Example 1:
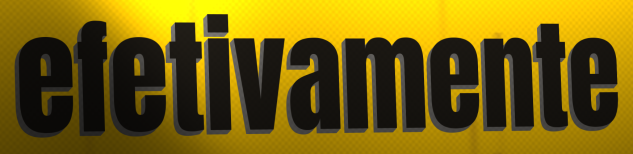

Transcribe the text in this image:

efetivamente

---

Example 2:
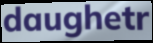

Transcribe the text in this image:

daughetr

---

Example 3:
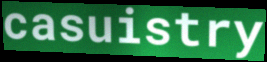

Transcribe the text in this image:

casuistry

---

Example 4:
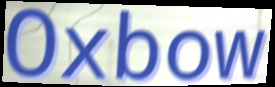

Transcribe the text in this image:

Oxbow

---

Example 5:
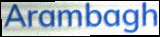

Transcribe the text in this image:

Arambagh